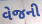
વેજની